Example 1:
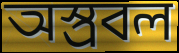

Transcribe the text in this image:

অস্ত্রবল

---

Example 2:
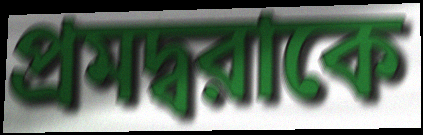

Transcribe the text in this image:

প্রমদ্বরাকে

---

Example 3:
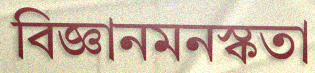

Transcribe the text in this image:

বিজ্ঞানমনস্কতা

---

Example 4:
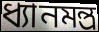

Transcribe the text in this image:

ধ্যানমন্ত্র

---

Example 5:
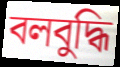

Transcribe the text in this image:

বলবুদ্ধি